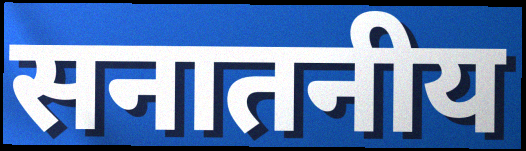
सनातनीय